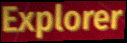
Explorer